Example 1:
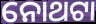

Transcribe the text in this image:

ନୋଥଟା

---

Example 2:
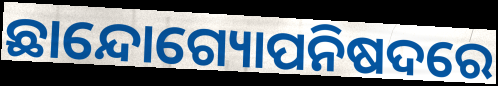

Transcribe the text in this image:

ଛାନ୍ଦୋଗ୍ୟୋପନିଷଦରେ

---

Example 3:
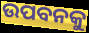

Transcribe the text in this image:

ଉପବନକୁ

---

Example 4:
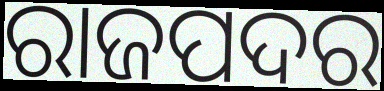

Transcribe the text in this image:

ରାଜପଦର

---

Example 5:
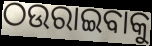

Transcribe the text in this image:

ଠଉରାଇବାକୁ